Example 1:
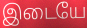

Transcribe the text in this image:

இடையே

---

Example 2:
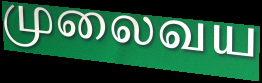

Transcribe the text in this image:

முலைவய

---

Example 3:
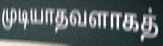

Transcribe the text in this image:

முடியாதவளாகத்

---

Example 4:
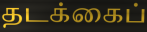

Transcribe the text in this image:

தடக்கைப்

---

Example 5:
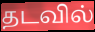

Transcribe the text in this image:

தடவில்